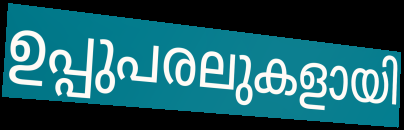
ഉപ്പുപരലുകളായി